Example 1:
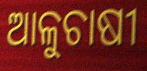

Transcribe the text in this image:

ଆଳୁଚାଷୀ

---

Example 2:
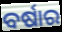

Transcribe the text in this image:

ବର୍ଷାର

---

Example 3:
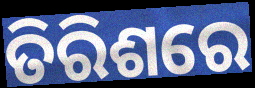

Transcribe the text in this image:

ତିରିଶରେ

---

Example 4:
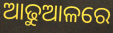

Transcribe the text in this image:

ଆଢୁଆଳରେ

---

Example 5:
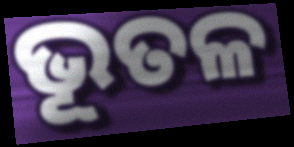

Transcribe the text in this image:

ଭୂତଳ